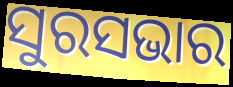
ସୁରସଭାର